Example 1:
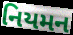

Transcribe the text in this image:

નિયમન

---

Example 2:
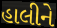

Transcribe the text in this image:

હાલીને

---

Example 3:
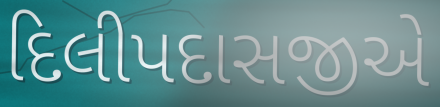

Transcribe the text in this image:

દિલીપદાસજીએ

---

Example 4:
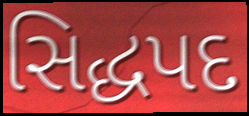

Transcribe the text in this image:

સિદ્ધપદ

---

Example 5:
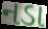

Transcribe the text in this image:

નડા